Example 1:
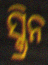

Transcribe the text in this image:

ସ୍କ୍ରିନ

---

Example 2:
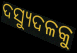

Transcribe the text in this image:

ଦସ୍ୟୁଦଳକୁ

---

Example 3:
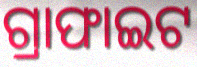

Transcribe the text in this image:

ଗ୍ରାଫାଇଟ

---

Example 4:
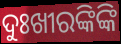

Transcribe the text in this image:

ଦୁଃଖୀରଙ୍କିଙ୍କି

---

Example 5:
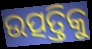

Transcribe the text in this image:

ଉତ୍ପତ୍ତିକୁ